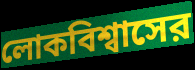
লোকবিশ্বাসের